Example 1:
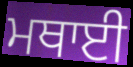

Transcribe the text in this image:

ਮਥਾਈ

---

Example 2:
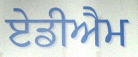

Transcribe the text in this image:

ਏਡੀਐਮ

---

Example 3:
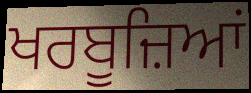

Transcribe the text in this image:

ਖਰਬੂਜ਼ਿਆਂ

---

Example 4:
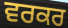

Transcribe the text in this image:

ਵਰਕਰ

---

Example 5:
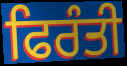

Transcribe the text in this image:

ਫਿਰੰਤੀ